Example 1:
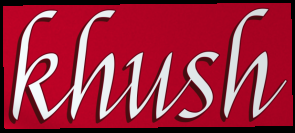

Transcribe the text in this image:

khush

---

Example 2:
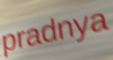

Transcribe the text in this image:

pradnya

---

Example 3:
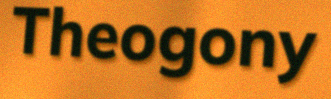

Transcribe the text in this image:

Theogony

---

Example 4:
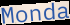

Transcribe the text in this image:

Monda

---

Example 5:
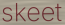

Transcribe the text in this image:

skeet